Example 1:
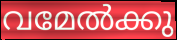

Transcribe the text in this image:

വമേൽക്കു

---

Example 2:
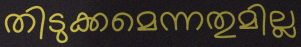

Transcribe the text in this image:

തിടുക്കമെന്നതുമില്ല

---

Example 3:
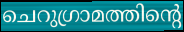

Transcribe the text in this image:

ചെറുഗ്രാമത്തിന്റെ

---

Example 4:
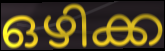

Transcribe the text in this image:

ഒഴിക്ക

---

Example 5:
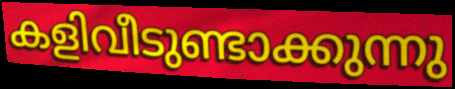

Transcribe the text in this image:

കളിവീടുണ്ടാക്കുന്നു